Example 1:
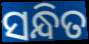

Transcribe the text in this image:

ସନ୍ଧିତ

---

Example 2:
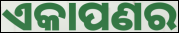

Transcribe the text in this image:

ଏକାପଣର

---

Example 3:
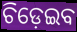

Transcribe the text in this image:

ଚିଡ଼େଇବ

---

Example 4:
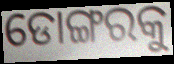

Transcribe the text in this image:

ଡୋଙ୍ଗରକୁ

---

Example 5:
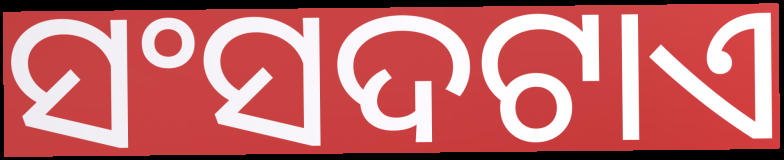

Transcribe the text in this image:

ସଂସଦଟାଏ